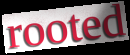
rooted